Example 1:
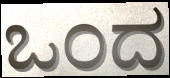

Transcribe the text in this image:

ಒಂದ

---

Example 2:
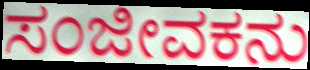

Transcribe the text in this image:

ಸಂಜೀವಕನು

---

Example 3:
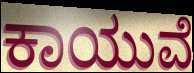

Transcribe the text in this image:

ಕಾಯುವೆ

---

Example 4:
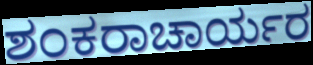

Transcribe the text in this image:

ಶಂಕರಾಚಾರ್ಯರ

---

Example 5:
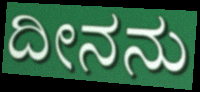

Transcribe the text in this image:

ದೀನನು